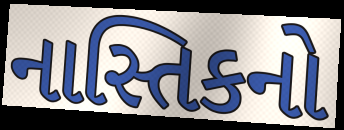
નાસ્તિકનો